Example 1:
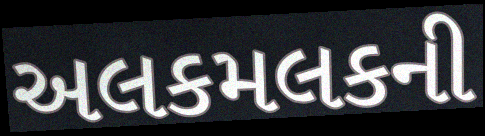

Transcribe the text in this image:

અલકમલકની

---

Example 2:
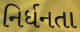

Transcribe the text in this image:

નિર્ધનતા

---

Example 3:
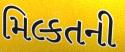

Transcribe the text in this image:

મિલ્કતની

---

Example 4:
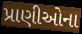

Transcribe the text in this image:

પ્રાણીઓના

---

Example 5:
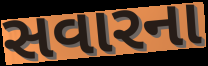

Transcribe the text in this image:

સવારના